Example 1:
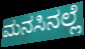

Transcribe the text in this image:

ಮನಸಿನಲ್ಲೆ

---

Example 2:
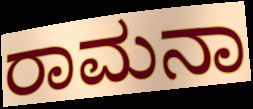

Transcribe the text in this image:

ರಾಮನಾ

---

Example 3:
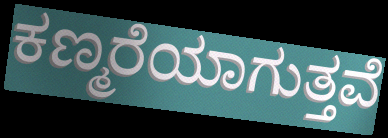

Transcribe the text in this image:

ಕಣ್ಮರೆಯಾಗುತ್ತವೆ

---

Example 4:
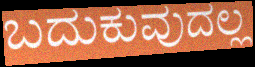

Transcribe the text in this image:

ಬದುಕುವುದಲ್ಲ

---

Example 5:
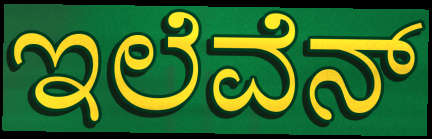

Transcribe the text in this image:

ಇಲೆವೆನ್